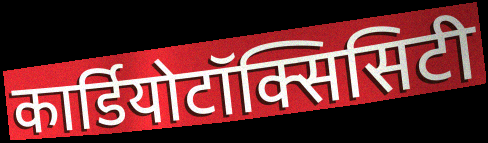
कार्डियोटॉक्सिसिटी